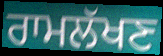
ਰਾਮਲੱਖਣ